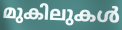
മുകിലുകൾ